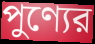
পুণ্যের